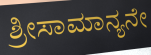
ಶ್ರೀಸಾಮಾನ್ಯನೇ